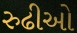
રુઢીઓ